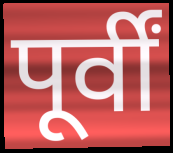
पूर्वीं